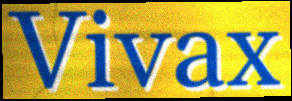
Vivax